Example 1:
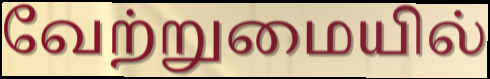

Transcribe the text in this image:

வேற்றுமையில்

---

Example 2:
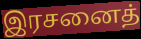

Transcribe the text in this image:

இரசனைத்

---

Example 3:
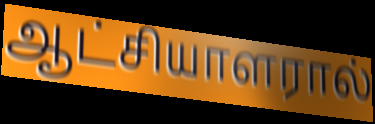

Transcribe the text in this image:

ஆட்சியாளரால்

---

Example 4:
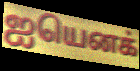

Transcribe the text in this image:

ஐயெனக்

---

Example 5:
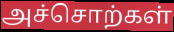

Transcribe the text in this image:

அச்சொற்கள்